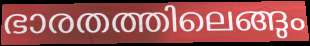
ഭാരതത്തിലെങ്ങും